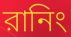
রানিং